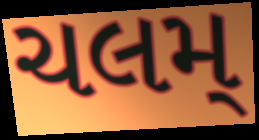
ચલમ્